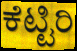
ಕೆಟ್ಟಿರಿ